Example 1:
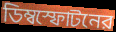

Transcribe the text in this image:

ডিম্বস্ফোটনের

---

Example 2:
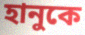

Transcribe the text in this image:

হানুকে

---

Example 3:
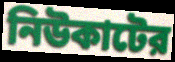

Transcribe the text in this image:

নিউকাটের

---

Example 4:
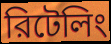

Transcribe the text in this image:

রিটেলিং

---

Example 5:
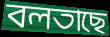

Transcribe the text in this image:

বলতাছে